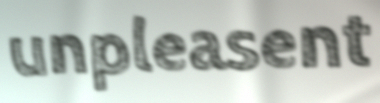
unpleasent